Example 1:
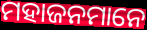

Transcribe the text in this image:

ମହାଜନମାନେ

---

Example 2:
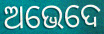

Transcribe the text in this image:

ଅଭେଦେ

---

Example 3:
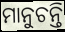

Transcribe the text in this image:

ମାନୁଚନ୍ତି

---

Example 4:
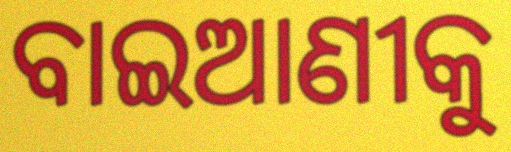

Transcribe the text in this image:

ବାଇଆଣୀକୁ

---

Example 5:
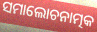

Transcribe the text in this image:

ସମାଲୋଚନାତ୍ମକ